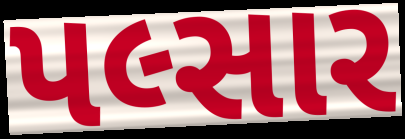
પલ્સાર